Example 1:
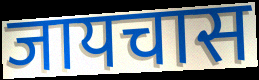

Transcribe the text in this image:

जायचास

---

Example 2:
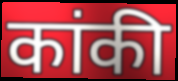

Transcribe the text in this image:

कांकी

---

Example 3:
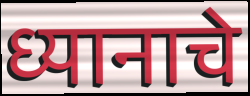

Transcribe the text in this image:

ध्यानाचे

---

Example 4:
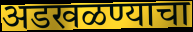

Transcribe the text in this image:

अडखळण्याचा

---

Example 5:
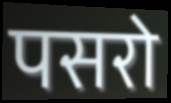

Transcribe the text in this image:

पसरो